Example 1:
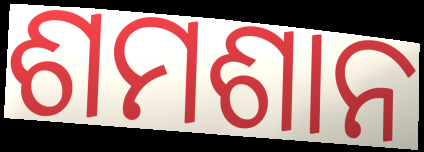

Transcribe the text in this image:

ଶମଶାନ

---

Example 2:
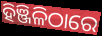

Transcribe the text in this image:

ହିଞ୍ଜିଳିଠାରେ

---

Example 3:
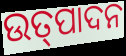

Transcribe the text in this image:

ଉତ୍‍ପାଦନ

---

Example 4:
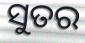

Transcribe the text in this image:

ସୁତର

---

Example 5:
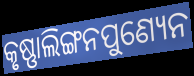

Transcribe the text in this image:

କୃଷ୍ଣାଲିଙ୍ଗନପୁଣ୍ଯେନ